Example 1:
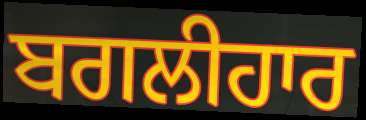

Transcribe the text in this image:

ਬਗਲੀਹਾਰ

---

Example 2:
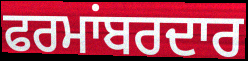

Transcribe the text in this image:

ਫਰਮਾਂਬਰਦਾਰ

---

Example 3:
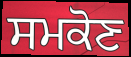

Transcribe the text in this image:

ਸਮਕੋਣ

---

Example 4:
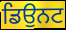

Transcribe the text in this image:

ਡਿਉਨਟ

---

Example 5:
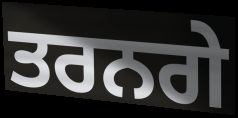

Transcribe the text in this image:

ਤਰਨਗੇ